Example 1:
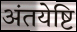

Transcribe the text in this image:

अंतयेष्टि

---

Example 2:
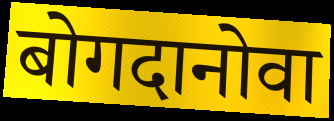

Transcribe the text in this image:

बोगदानोवा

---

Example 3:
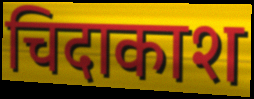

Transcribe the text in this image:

चिदाकाश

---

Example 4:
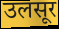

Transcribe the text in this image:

उलसूर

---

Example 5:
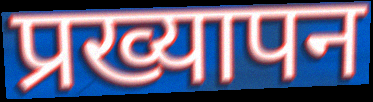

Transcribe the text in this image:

प्रख्यापन